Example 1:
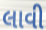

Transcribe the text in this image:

લાવી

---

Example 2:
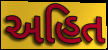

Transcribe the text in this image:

અહિત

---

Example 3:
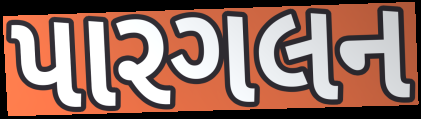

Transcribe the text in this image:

પારગલન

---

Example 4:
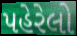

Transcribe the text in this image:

પહેરેલો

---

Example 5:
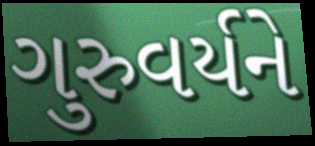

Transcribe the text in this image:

ગુરુવર્યને